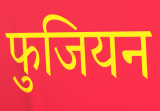
फुजियन